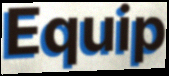
Equip